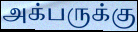
அக்பருக்கு